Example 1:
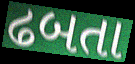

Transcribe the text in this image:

ઢબતા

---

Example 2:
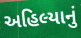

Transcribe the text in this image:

અહિલ્યાનું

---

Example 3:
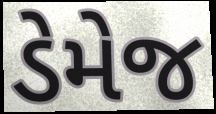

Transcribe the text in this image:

ડેમેજ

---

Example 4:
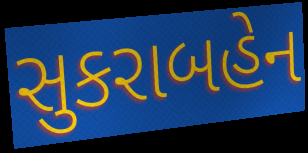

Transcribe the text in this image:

સુકરાબહેન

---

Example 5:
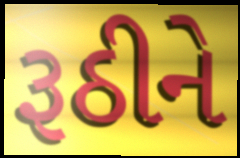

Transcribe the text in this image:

રૂઠીને